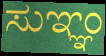
ಸುಞ್ಞಂ